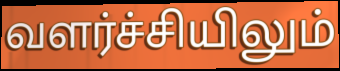
வளர்ச்சியிலும்